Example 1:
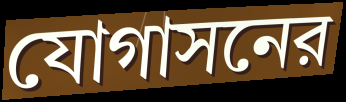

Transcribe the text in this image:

যোগাসনের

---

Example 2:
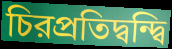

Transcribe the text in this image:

চিরপ্রতিদ্বন্দ্বি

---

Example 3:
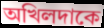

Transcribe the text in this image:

অখিলদাকে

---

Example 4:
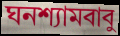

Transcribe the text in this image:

ঘনশ্যামবাবু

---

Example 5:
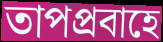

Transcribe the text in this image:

তাপপ্রবাহে